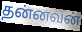
தன்னவன்